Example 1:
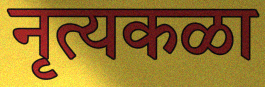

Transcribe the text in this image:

नृत्यकळा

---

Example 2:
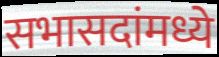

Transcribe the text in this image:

सभासदांमध्ये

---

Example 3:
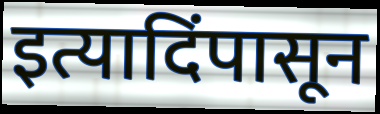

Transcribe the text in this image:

इत्यादिंपासून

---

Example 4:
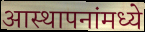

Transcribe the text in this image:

आस्थापनांमध्ये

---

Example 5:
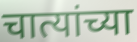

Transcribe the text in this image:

चात्यांच्या